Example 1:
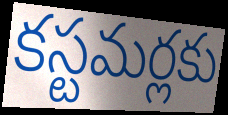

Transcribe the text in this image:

కస్టమర్లకు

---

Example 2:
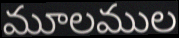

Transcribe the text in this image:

మూలముల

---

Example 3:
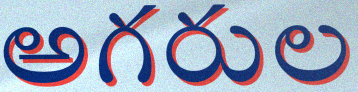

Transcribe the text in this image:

అగరుల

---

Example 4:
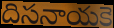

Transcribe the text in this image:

దిసనాయకె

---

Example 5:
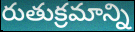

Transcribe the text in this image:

రుతుక్రమాన్ని